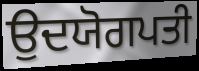
ਉਦਯੋਗਪਤੀ